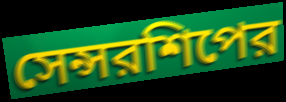
সেন্সরশিপের